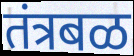
तंत्रबळ